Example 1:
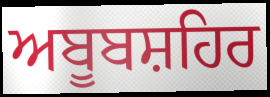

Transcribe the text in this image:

ਅਬੂਬਸ਼ਹਿਰ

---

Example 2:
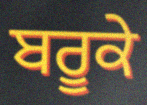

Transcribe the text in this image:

ਬਰੂਕੇ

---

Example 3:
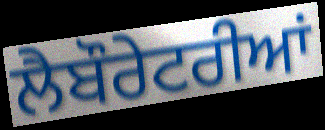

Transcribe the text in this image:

ਲੈਬੌਰੇਟਰੀਆਂ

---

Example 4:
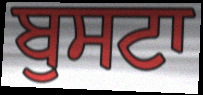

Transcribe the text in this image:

ਬੁਸਟਾ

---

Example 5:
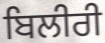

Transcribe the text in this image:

ਬਿਲੀਰੀ